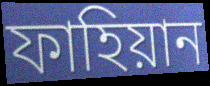
ফাহিয়ান